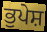
ਭੁਪੇਸ਼